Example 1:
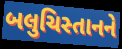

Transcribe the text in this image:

બલુચિસ્તાનને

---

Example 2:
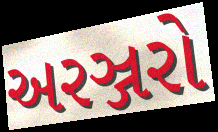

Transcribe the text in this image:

અરઞ્જરો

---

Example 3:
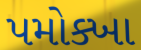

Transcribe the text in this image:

પમોક્ખા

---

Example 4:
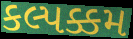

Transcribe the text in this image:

કલ્પક્કમ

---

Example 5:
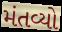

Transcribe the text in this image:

મંતવ્યો